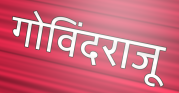
गोविंदराजू